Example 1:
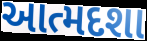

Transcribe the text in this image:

આત્મદશા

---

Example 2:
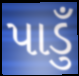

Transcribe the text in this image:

પાડુઁ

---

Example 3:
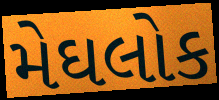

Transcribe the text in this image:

મેઘલોક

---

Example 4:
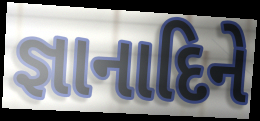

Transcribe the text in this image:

જ્ઞાનાદિને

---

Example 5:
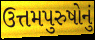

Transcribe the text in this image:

ઉત્તમપુરુષોનું